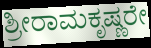
ಶ್ರೀರಾಮಕೃಷ್ಣರೇ